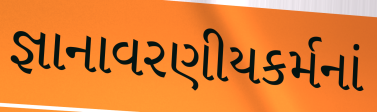
જ્ઞાનાવરણીયકર્મનાં